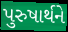
પુરુષાર્થને